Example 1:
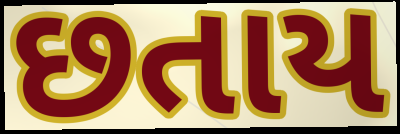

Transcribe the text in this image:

છતાય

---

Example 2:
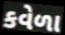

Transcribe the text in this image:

કવેળા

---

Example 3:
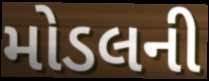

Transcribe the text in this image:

મોડલની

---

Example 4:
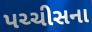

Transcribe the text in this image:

પચ્ચીસના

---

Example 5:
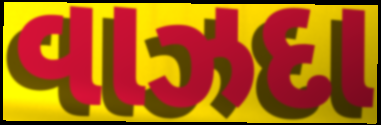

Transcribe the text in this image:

વાઝદા